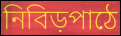
নিবিড়পাঠে